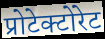
प्रोटेक्टोरेट